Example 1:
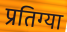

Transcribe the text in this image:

प्रतिग्या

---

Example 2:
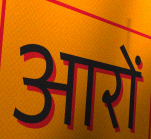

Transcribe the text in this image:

आरों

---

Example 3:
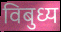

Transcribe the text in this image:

विबुध्य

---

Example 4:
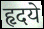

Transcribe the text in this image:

हृदये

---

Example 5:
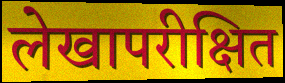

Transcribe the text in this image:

लेखापरीक्षित